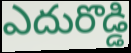
ఎదురొడ్డి